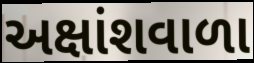
અક્ષાંશવાળા